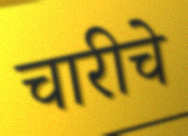
चारीचे